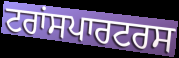
ਟਰਾਂਸਪਾਰਟਰਸ